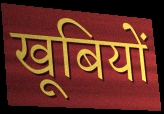
खूबियों